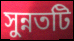
সুন্নতটি